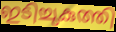
ഇടിച്ചുകുത്തി